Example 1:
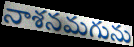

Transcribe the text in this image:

నాశనమగును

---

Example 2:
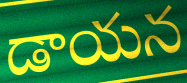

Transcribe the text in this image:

డాయన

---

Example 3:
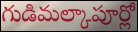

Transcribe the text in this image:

గుడిమల్కాపూర్లో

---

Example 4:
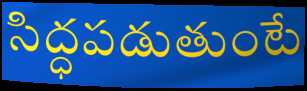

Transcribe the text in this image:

సిద్ధపడుతుంటే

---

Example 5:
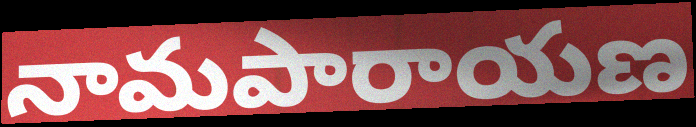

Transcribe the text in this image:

నామపారాయణ